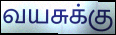
வயசுக்கு